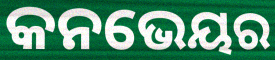
କନଭେୟର